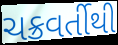
ચક્રવર્તીથી